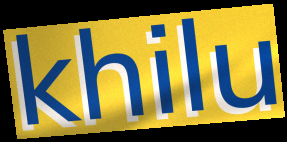
khilu